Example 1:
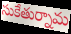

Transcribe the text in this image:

సుకేతుర్నామ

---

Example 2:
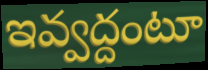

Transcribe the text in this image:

ఇవ్వద్దంటూ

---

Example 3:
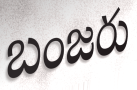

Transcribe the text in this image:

బంజరు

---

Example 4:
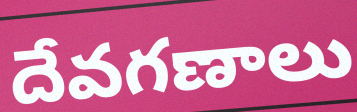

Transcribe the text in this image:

దేవగణాలు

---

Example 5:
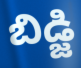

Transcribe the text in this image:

బిడ్జి